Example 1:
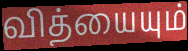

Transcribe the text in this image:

வித்யையும்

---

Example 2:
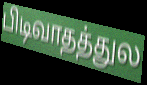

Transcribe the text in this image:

பிடிவாதத்துல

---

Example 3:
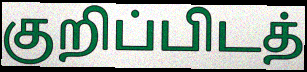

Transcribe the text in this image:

குறிப்பிடத்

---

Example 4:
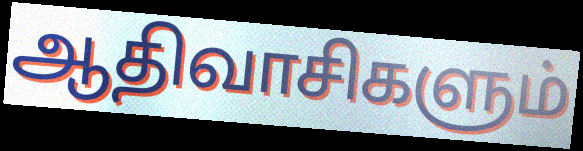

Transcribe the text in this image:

ஆதிவாசிகளும்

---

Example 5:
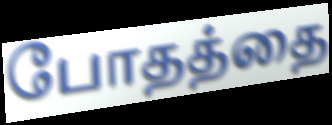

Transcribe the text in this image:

போதத்தை